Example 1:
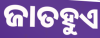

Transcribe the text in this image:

ଜାତହୁଏ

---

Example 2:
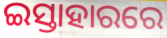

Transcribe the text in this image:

ଇସ୍ତାହାରରେ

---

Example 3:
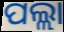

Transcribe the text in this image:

ପଲ୍ଲା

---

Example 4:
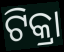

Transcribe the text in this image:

ଟିକ୍ରା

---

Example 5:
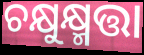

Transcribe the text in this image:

ଚକ୍ଷୁକ୍ଷ୍ମତ୍ତା